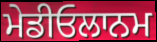
ਮੇਡੀਓਲਾਨਮ